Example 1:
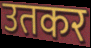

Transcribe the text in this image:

उतकर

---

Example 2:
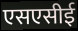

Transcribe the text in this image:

एसएसीई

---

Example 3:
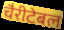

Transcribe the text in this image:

चैरीटेबल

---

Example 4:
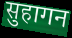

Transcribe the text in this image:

सुहागन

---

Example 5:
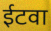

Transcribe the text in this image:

ईटवा